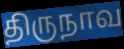
திருநாவ